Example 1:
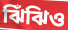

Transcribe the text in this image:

ঝিঁঝিও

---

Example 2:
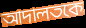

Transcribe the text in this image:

আদালতকে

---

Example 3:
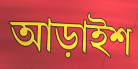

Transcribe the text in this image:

আড়াইশ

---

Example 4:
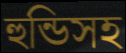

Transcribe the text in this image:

হুন্ডিসহ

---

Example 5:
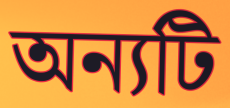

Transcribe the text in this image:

অন্যটি